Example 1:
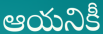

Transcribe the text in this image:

ఆయనికీ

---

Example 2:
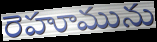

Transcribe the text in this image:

రెహూమును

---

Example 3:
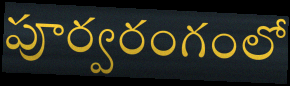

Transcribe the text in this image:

పూర్వరంగంలో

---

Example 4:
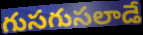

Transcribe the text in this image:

గుసగుసలాడే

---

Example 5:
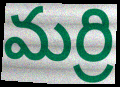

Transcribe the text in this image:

మర్రి